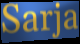
Sarja